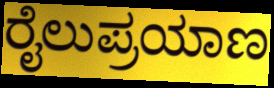
ರೈಲುಪ್ರಯಾಣ